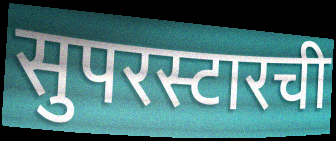
सुपरस्टारची